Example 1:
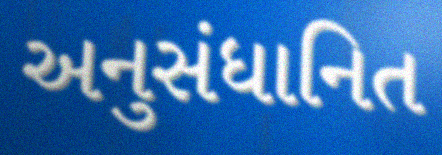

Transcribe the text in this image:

અનુસંધાનિત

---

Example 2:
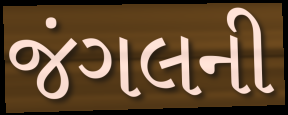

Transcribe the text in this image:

જંગલની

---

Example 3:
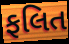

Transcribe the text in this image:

ફલિત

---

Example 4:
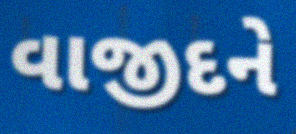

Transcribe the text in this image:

વાજીદને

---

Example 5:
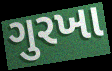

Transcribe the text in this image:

ગુરખા